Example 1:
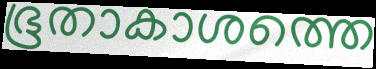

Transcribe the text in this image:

ഭൂതാകാശത്തെ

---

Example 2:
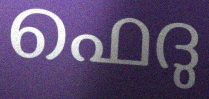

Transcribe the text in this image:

ഫെദു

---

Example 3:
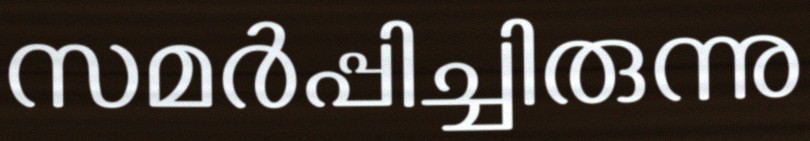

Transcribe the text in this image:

സമർപ്പിച്ചിരുന്നു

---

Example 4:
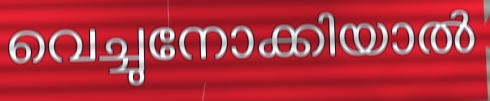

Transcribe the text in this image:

വെച്ചുനോക്കിയാൽ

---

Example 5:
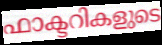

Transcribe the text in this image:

ഫാക്ടറികളുടെ